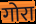
गोरा